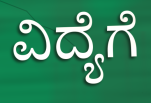
ವಿದ್ಯೆಗೆ